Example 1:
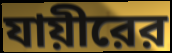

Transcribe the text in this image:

যায়ীরের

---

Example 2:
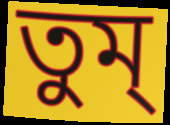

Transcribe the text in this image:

তুম্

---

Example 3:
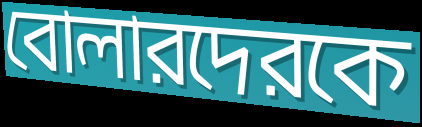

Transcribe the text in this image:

বোলারদেরকে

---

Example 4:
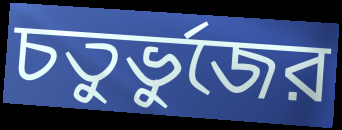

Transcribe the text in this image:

চতুর্ভুজের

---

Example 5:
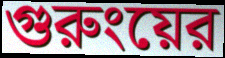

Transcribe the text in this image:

গুরুংয়ের